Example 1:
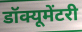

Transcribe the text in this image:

डॉक्यूमेंटरी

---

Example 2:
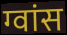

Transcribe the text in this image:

ग्वांस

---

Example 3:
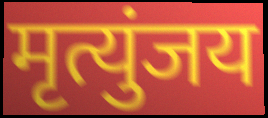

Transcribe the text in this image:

मृत्युंजय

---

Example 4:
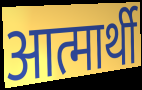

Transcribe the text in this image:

आत्मार्थी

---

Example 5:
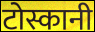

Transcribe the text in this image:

टोस्कानी